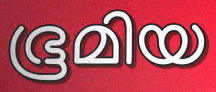
ഭൂമിയ